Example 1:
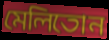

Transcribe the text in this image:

মেলিতোন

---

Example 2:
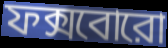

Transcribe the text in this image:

ফক্সবোরো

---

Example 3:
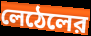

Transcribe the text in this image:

লেঠেলের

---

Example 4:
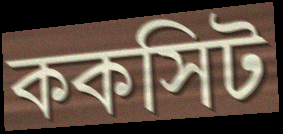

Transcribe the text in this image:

ককসিট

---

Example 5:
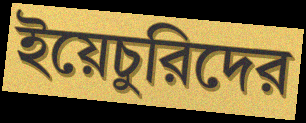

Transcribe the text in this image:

ইয়েচুরিদের